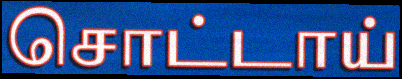
சொட்டாய்